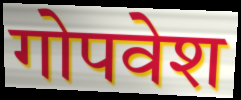
गोपवेश